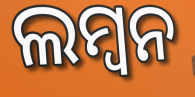
ଲମ୍ବନ